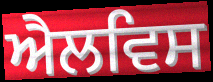
ਐਲਵਿਸ